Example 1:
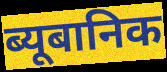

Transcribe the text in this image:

ब्यूबानिक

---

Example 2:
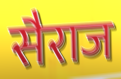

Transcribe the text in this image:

सैराज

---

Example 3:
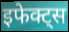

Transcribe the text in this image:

इफेक्ट्स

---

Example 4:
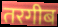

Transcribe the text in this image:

तरगीब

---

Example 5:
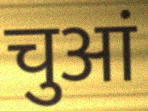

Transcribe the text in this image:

चुआं